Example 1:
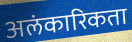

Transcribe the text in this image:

अलंकारिकता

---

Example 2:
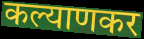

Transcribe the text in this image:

कल्याणकर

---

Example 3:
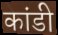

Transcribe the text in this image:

कांडी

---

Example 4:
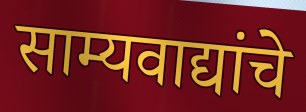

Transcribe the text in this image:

साम्यवाद्यांचे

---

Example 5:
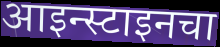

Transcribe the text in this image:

आइन्स्टाइनचा